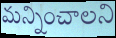
మన్నించాలని